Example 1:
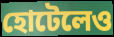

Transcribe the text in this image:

হোটেলেও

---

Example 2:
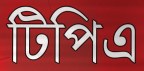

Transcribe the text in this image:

টিপিএ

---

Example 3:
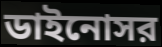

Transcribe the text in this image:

ডাইনোসর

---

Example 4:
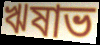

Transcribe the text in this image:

ঋষাভ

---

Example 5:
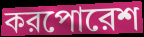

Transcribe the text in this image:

করপোরেশ